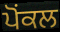
ਪੋਂਕਲ